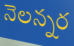
నెలన్నర